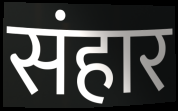
संहार